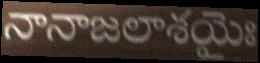
నానాజలాశయైః